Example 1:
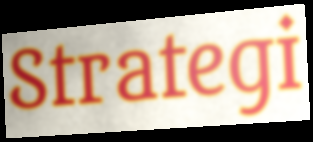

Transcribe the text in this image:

Strategi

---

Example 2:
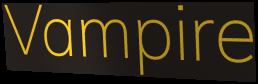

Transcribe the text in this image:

Vampire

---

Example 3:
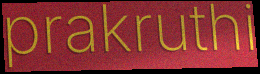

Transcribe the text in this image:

prakruthi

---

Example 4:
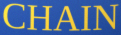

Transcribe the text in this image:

CHAIN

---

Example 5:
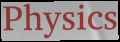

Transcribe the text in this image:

Physics